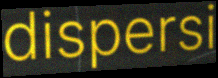
dispersi